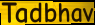
Tadbhav